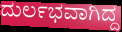
ದುರ್ಲಭವಾಗಿದ್ದ